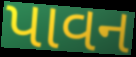
પાવન